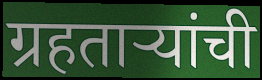
ग्रहताऱ्यांची